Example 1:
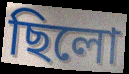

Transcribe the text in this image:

ছিলো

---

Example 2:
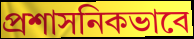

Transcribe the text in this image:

প্রশাসনিকভাবে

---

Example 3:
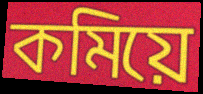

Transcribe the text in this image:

কমিয়ে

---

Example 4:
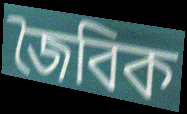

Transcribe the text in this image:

জৈবিক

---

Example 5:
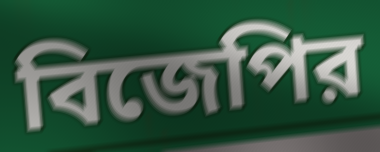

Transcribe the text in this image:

বিজেপির